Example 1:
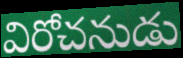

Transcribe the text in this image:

విరోచనుడు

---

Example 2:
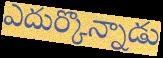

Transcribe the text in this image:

ఎదుర్కొన్నాడు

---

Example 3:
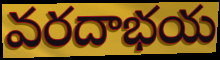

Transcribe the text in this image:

వరదాభయ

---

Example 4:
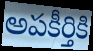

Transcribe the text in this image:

అపకీర్తికి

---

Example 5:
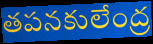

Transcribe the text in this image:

తపనకులేంద్ర